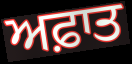
ਅਫ਼ਾਤ